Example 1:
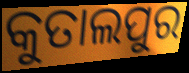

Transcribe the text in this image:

କୁତାଲପୁର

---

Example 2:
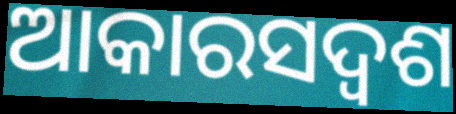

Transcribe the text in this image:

ଆକାରସଦ୍ୱଶ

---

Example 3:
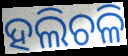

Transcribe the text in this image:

ହଲିଚଳି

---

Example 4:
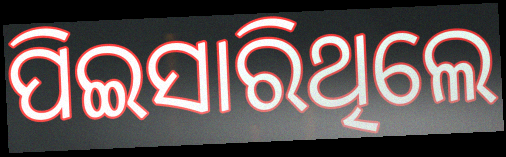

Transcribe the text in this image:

ପିଇସାରିଥିଲେ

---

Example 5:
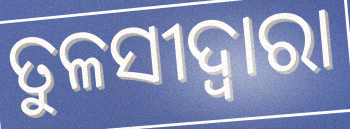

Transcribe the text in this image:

ତୁଳସୀଦ୍ବାରା